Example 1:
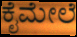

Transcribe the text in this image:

ಕೈಮೇಲೆ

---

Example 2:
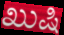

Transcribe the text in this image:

ಖುಷಿ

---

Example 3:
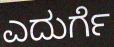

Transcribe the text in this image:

ಎದುರ್ಗೆ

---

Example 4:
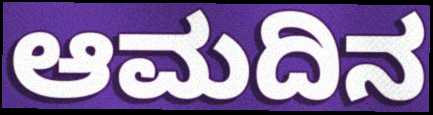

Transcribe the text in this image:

ಆಮದಿನ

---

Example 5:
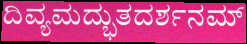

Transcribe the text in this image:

ದಿವ್ಯಮದ್ಭುತದರ್ಶನಮ್